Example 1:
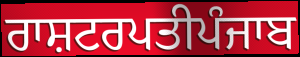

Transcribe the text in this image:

ਰਾਸ਼ਟਰਪਤੀਪੰਜਾਬ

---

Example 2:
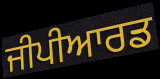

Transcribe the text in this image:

ਜੀਪੀਆਰਡ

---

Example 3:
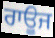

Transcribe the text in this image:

ਰਾਊਜ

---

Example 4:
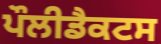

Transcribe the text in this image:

ਪੌਲੀਡੈਕਟਸ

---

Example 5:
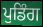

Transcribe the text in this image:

ਪੁਡਿੰਗ